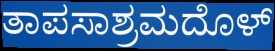
ತಾಪಸಾಶ್ರಮದೊಳ್